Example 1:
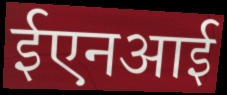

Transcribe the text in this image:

ईएनआई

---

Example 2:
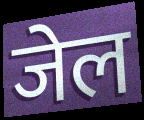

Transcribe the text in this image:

जेल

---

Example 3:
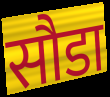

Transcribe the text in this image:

सौडा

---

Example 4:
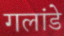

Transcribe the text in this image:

गलांडे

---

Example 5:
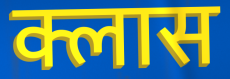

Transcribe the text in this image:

क्लास